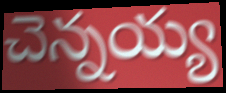
చెన్నయ్య